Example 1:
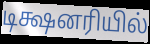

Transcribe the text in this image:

டிக்ஷனரியில்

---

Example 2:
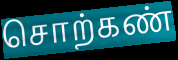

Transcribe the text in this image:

சொற்கண்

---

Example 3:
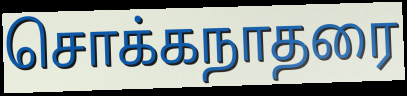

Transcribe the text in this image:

சொக்கநாதரை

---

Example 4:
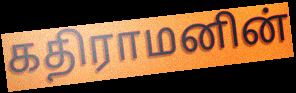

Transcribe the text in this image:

கதிராமனின்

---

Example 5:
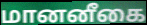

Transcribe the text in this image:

மானனீகை